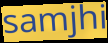
samjhi